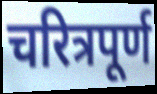
चरित्रपूर्ण